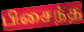
பிசைந்த